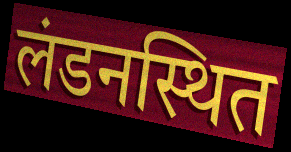
लंडनस्थित